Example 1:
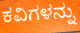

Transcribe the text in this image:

ಕವಿಗಳನ್ನು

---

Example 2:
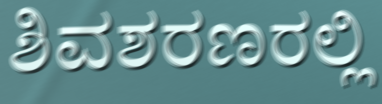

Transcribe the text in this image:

ಶಿವಶರಣರಲ್ಲಿ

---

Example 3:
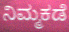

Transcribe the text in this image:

ನಿಮ್ಮಕಡೆ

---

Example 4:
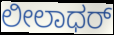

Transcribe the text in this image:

ಲೀಲಾಧರ್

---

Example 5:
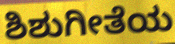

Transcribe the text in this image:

ಶಿಶುಗೀತೆಯ